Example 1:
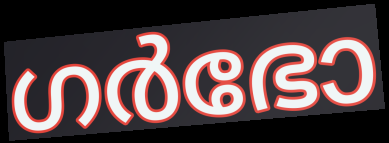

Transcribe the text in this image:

ഗർഭോ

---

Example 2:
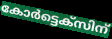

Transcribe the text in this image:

കോർട്ടെക്സിന്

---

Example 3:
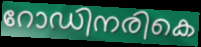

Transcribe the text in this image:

റോഡിനരികെ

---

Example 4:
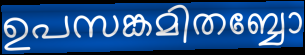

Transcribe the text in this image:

ഉപസങ്കമിതബ്ബോ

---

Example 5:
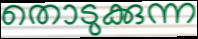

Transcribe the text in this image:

തൊടുക്കുന്ന